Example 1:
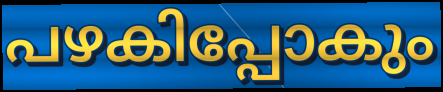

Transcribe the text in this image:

പഴകിപ്പോകും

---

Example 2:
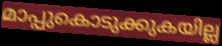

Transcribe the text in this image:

മാപ്പുകൊടുക്കുകയില്ല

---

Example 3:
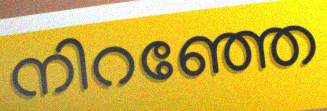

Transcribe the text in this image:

നിറഞ്ഞേ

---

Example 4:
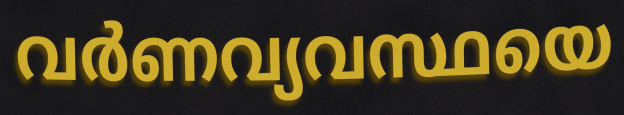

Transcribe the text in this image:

വർണവ്യവസ്ഥയെ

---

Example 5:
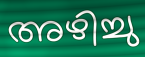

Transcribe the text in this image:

അഴിച്ചു